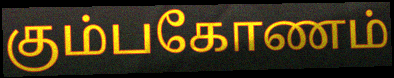
கும்பகோணம்